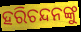
ହରିଚନ୍ଦନଙ୍କୁ